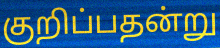
குறிப்பதன்று